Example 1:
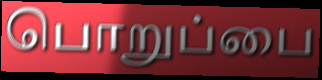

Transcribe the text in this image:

பொறுப்பை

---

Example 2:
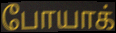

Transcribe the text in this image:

போயாக்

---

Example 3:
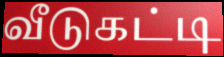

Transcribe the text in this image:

வீடுகட்டி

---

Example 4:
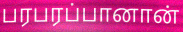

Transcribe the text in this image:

பரபரப்பானான்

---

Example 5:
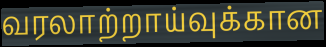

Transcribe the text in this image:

வரலாற்றாய்வுக்கான